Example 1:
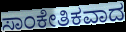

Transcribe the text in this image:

ಸಾಂಕೇತಿಕವಾದ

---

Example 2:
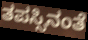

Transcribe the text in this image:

ತಪಸ್ಸಿನಂತೆ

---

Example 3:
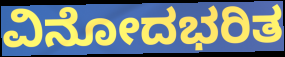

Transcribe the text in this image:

ವಿನೋದಭರಿತ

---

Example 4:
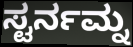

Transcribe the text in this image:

ಸ್ಟರ್ನಮ್ನ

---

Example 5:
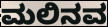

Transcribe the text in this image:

ಮಲಿನವ